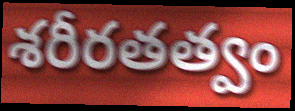
శరీరతత్వం